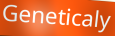
Geneticaly